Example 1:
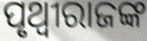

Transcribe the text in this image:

ପୃଥ୍ୱୀରାଜଙ୍କ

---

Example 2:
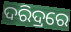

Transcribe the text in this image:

ଦରିଦ୍ରରେ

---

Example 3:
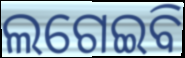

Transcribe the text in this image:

ଲଗେଇବି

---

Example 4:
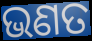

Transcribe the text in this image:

ଭଣତ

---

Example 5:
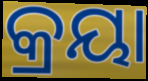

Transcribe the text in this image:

କ୍ରୟା